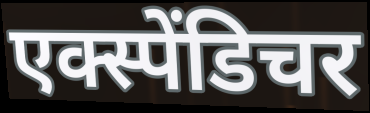
एक्स्पेंडिचर